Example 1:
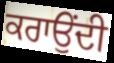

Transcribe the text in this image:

ਕਰਾਉਂਦੀ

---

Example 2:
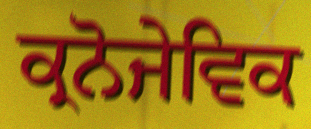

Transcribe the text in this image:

ਕ੍ਰਨੋਜੇਵਿਕ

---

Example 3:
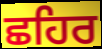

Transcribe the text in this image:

ਛਹਿਰ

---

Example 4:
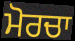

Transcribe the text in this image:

ਮੋਰਚਾ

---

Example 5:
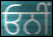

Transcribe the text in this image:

ਓਨੀਂ